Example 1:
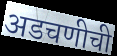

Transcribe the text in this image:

अडचणीची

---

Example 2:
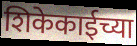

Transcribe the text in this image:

शिकेकाईच्या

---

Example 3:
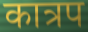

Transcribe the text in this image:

कात्रप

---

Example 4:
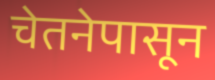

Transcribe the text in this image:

चेतनेपासून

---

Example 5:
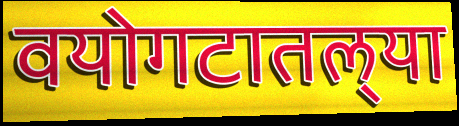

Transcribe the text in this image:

वयोगटातल्या